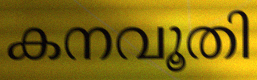
കനവൂതി